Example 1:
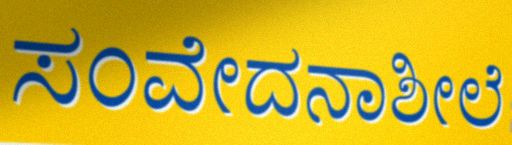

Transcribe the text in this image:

ಸಂವೇದನಾಶೀಲೆ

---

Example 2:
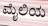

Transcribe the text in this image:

ಮೈಲಿಯ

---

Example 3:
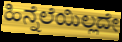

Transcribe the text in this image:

ಹಿನ್ನೆಲೆಯಿಲ್ಲದೇ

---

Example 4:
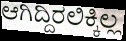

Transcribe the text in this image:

ಆಗಿದ್ದಿರಲಿಕ್ಕಿಲ್ಲ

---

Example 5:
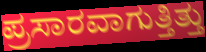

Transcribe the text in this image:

ಪ್ರಸಾರವಾಗುತ್ತಿತ್ತು